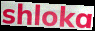
shloka